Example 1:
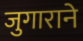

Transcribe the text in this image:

जुगाराने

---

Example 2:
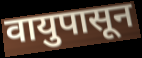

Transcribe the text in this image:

वायुपासून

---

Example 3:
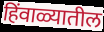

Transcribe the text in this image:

हिंवाळ्यातील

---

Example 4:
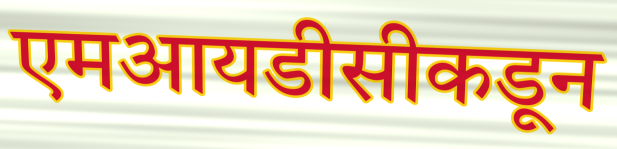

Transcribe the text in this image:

एमआयडीसीकडून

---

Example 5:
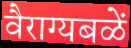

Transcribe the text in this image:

वैराग्यबळें